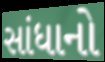
સાંધાનો